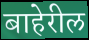
बाहेरील